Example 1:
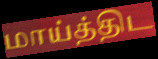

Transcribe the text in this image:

மாய்த்திட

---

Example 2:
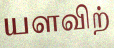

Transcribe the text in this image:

யளவிற்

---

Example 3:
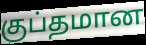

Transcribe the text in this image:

குப்தமான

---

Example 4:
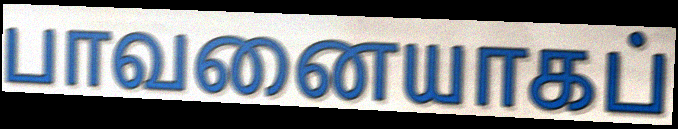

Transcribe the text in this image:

பாவனையாகப்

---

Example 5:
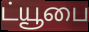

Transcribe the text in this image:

ட்யூபை